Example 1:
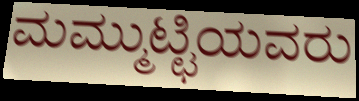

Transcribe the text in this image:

ಮಮ್ಮುಟ್ಟಿಯವರು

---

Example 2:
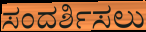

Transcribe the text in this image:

ಸಂದರ್ಶಿಸಲು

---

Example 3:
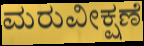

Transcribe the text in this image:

ಮರುವೀಕ್ಷಣೆ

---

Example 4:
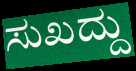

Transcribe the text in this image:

ಸುಖದ್ದು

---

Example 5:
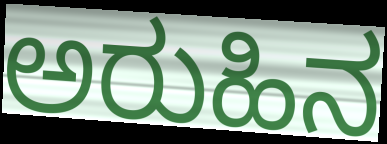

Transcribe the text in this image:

ಅರುಹಿನ